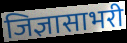
जिज्ञासाभरी